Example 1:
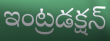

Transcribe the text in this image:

ఇంట్రడక్షన్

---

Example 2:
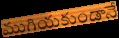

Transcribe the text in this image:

ముగియకుండానే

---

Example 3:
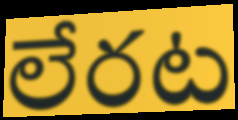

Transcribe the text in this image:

లేరట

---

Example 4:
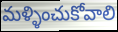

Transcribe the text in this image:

మళ్ళించుకోవాలి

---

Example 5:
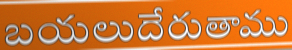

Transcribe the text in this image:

బయలుదేరుతాము